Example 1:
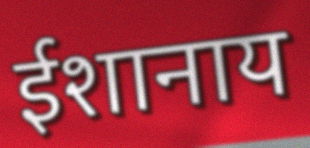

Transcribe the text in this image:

ईशानाय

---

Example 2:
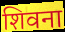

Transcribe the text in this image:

शिवना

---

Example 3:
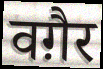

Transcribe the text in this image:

वग़ैर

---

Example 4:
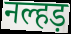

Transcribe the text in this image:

नल्हड़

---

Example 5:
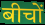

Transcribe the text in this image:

बीचों